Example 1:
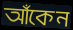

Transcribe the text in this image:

আঁকেন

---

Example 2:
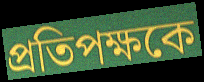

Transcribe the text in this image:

প্রতিপক্ষকে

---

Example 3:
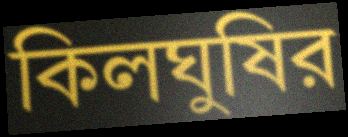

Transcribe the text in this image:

কিলঘুষির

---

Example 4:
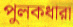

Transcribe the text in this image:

পুলকধারা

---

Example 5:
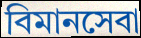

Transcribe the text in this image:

বিমানসেবা